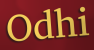
Odhi